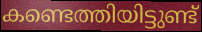
കണ്ടെത്തിയിട്ടുണ്ട്